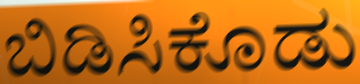
ಬಿಡಿಸಿಕೊಡು